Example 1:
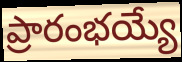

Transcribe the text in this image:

ప్రారంభయ్యే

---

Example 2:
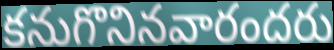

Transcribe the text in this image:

కనుగొనినవారందరు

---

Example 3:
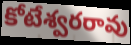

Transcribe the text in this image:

కోటేశ్వరరావు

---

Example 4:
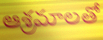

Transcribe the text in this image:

ఆశ్రమాలతో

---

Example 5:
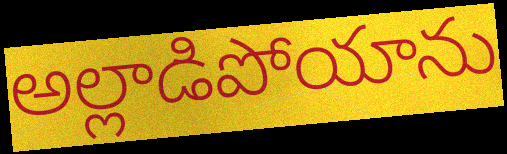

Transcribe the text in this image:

అల్లాడిపోయాను